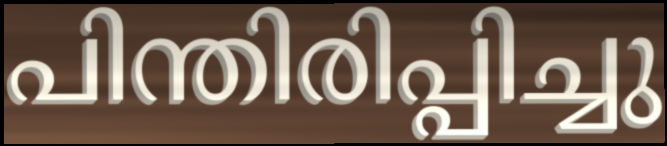
പിന്തിരിപ്പിച്ചു